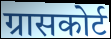
ग्रासकोर्ट